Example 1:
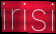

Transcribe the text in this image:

irisi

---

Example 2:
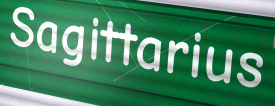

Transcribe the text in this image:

Sagittarius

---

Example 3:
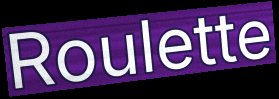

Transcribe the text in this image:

Roulette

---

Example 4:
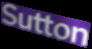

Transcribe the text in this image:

Sutton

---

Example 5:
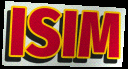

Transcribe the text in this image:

ISIM